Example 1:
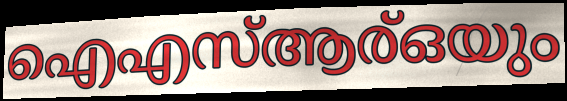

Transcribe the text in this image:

ഐഎസ്ആര്ഒയും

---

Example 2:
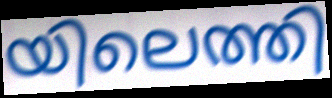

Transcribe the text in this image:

യിലെത്തി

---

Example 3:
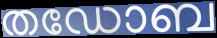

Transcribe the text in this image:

തഡോബ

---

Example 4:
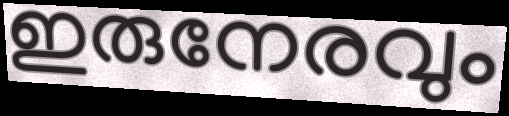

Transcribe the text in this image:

ഇരുനേരവും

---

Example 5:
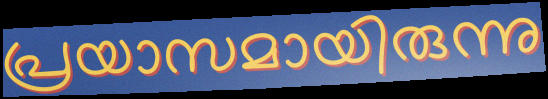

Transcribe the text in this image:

പ്രയാസമായിരുന്നു